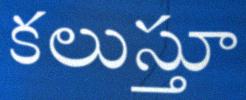
కలుస్తూ